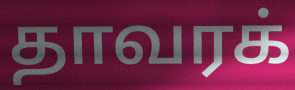
தாவரக்